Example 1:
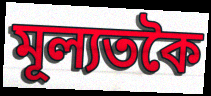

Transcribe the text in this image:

মূল্যতকৈ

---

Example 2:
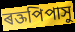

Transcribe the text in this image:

ৰক্তপিপাসু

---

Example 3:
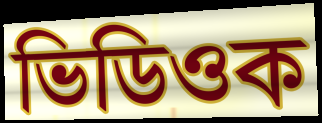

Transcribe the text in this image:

ভিডিওক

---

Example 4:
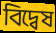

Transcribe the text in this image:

বিদ্বেষ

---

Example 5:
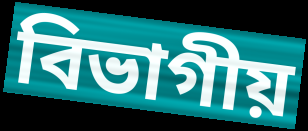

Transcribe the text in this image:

বিভাগীয়